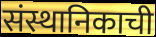
संस्थानिकाची